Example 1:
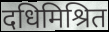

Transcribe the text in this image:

दधिमिश्रित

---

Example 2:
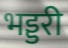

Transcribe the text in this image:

भड्डरी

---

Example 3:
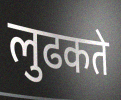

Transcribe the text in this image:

लुढकते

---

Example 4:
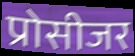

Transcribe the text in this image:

प्रोसीजर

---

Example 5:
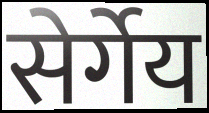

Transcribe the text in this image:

सेर्गेय